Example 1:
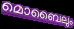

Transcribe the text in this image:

മൊബൈലും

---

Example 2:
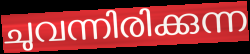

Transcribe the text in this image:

ചുവന്നിരിക്കുന്ന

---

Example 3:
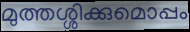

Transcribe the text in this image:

മുത്തശ്ശിക്കുമൊപ്പം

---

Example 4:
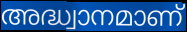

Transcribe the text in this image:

അദ്ധ്വാനമാണ്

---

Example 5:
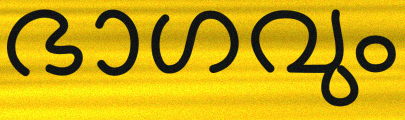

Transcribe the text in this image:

ഭാഗവും